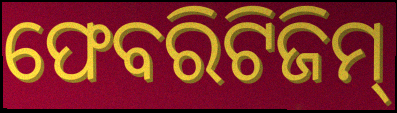
ଫେବରିଟିଜିମ୍